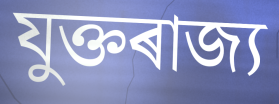
যুক্তৰাজ্য